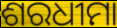
ଶରଧୀମା